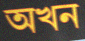
অখন